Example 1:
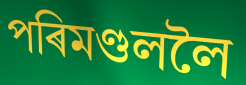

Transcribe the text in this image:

পৰিমণ্ডললৈ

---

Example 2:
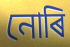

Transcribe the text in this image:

নোৰি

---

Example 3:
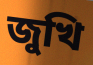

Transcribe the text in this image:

জুখি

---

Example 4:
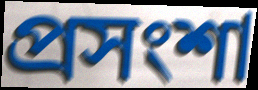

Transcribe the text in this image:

প্ৰসংশা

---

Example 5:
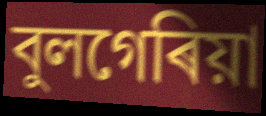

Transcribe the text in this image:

বুলগেৰিয়া